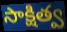
సాక్షిత్వ